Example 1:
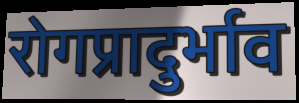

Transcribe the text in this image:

रोगप्रादुर्भाव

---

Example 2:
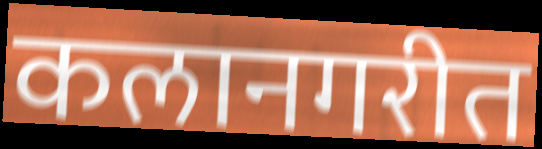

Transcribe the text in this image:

कलानगरीत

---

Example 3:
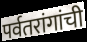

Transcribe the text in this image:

पर्वतरांगांची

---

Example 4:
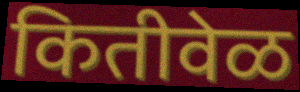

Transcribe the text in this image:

कितीवेळ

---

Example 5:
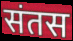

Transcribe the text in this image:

संतस